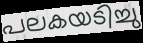
പലകയടിച്ചു